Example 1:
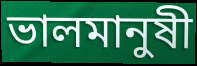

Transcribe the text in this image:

ভালমানুষী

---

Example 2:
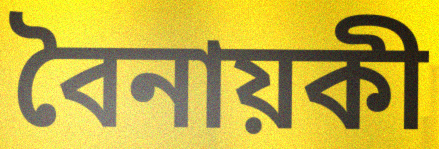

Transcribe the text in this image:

বৈনায়কী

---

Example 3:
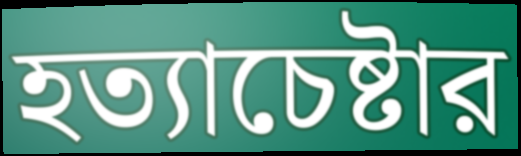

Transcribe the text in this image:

হত্যাচেষ্টার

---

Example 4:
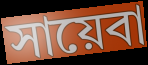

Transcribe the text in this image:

সায়েবা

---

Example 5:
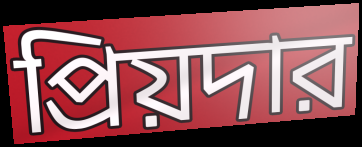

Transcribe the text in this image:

প্রিয়দার